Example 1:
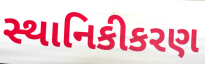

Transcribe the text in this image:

સ્થાનિકીકરણ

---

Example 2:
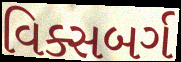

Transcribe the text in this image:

વિક્સબર્ગ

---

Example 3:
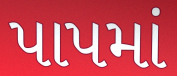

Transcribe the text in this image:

પાપમાં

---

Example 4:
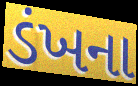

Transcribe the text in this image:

ડંખના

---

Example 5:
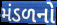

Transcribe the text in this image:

મંડળનો